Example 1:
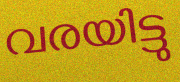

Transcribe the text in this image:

വരയിട്ടു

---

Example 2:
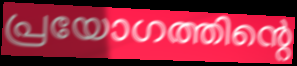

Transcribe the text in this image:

പ്രയോഗത്തിന്റെ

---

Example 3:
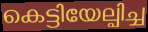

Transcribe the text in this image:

കെട്ടിയേല്പിച്ച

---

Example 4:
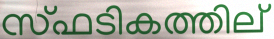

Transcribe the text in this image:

സ്ഫടികത്തില്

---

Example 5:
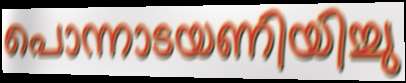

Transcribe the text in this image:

പൊന്നാടയണിയിച്ചു